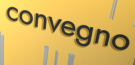
convegno